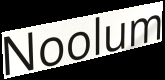
Noolum